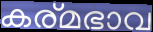
കര്മഭാവ